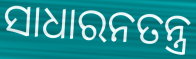
ସାଧାରନତନ୍ତ୍ର